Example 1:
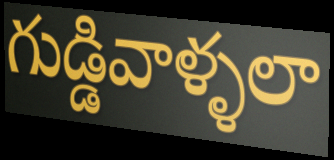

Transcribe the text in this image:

గుడ్డివాళ్ళలా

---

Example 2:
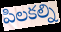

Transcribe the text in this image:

పిలకల్ని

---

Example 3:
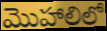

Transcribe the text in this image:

మొహాలిలో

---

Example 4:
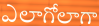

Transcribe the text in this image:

ఎలాగోలాగా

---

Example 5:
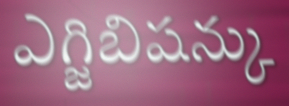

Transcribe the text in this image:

ఎగ్జిబిషన్కు